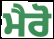
ਮੈਰੋ